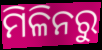
ମିଳିନରୁ